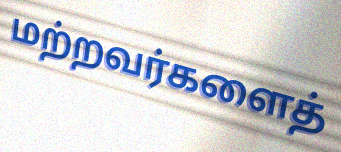
மற்றவர்களைத்